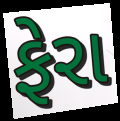
ફેરા